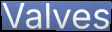
Valves